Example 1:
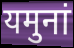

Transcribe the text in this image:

यमुनां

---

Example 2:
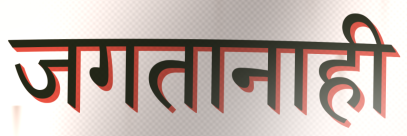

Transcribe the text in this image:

जगतानाही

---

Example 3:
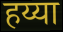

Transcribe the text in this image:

हय्या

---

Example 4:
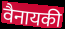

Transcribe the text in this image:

वैनायकी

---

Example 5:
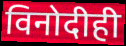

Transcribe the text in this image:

विनोदीही